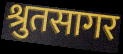
श्रुतसागर